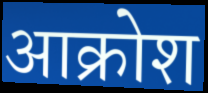
आक्रोश